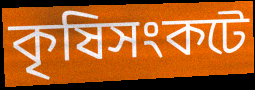
কৃষিসংকটে